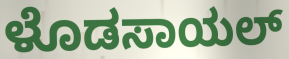
ಳೊಡಸಾಯಲ್